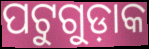
ପଟୁଗୁଡ଼ାକ